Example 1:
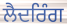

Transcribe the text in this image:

ਲੈਦਰਿੰਗ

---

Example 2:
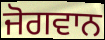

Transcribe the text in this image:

ਜੋਗਵਾਨ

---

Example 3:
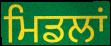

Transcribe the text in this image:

ਮਿਡਲਾਂ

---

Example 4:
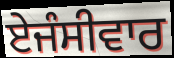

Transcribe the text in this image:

ਏਜੰਸੀਵਾਰ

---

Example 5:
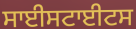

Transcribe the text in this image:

ਸਾਈਸਟਾਈਟਸ